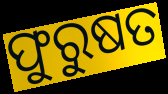
ଫୁରୁଷତ